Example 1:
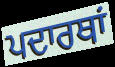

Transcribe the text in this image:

ਪਦਾਰਥਾਂ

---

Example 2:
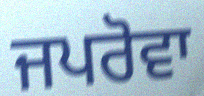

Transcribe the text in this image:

ਜਪਰੋਵਾ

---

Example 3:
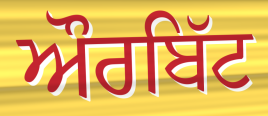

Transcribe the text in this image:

ਔਰਬਿੱਟ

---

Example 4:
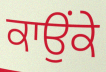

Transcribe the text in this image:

ਕਾਉਂਕੇ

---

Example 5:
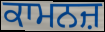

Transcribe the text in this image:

ਕਾਮਨਜ਼